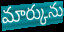
మార్కును